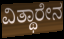
ವಿತ್ಥಾರೇನ